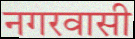
नगरवासी